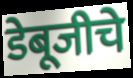
डेबूजीचे